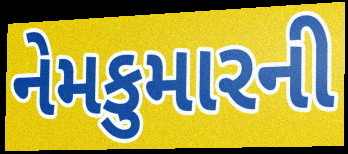
નેમકુમારની